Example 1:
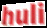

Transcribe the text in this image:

huli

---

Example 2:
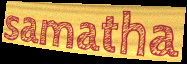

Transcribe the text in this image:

samatha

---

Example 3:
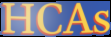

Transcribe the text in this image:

HCAs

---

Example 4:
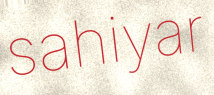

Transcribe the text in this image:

sahiyar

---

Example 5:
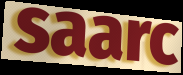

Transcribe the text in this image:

saarc